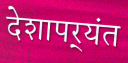
देशापर्यंत